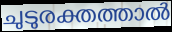
ചുടുരക്തത്താൽ